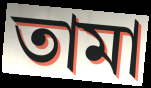
তামা